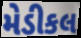
મેડીકલ